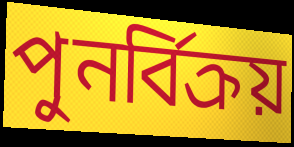
পুনর্বিক্রয়